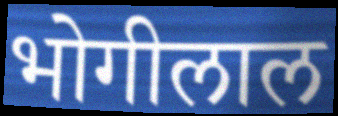
भोगीलाल